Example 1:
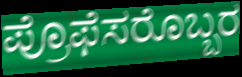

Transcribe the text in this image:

ಪ್ರೊಫೆಸರೊಬ್ಬರ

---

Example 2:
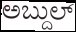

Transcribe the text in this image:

ಅಬ್ದುಲ್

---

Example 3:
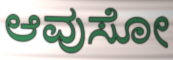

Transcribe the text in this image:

ಆವುಸೋ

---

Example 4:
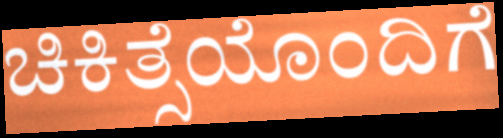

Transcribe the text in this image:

ಚಿಕಿತ್ಸೆಯೊಂದಿಗೆ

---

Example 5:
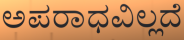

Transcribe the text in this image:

ಅಪರಾಧವಿಲ್ಲದೆ